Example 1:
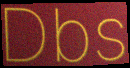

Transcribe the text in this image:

Dbs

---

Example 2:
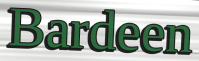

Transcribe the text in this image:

Bardeen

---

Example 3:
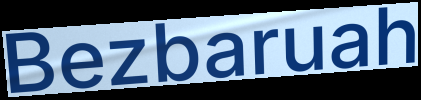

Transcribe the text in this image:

Bezbaruah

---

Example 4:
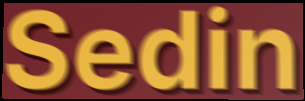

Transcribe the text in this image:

Sedin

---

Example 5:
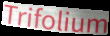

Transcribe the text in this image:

Trifolium